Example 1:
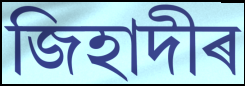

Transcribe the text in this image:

জিহাদীৰ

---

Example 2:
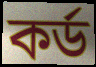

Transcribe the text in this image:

কৰ্ড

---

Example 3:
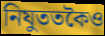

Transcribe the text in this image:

নিযুততকৈও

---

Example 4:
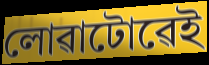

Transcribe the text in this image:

লোৱাটোৱেই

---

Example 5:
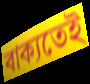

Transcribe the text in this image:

বাক্যতেই